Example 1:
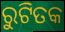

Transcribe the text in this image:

ରୁଟିତକ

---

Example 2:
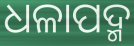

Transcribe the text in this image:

ଧଳାପଦ୍ମ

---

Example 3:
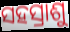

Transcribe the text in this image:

ସହସ୍ରାଶୁ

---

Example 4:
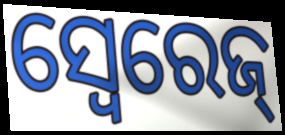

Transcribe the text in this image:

ସ୍ବେରେଜ୍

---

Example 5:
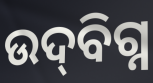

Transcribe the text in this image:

ଉଦ୍‍ବିଗ୍ନ